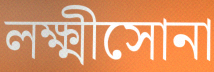
লক্ষ্মীসোনা